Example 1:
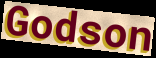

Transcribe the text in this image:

Godson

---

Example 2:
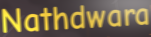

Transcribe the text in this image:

Nathdwara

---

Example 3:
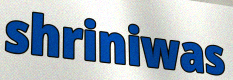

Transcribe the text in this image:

shriniwas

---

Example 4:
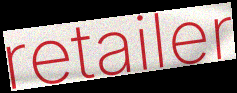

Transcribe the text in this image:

retailer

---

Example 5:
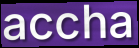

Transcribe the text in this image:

accha